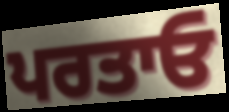
ਪਰਤਾਓ